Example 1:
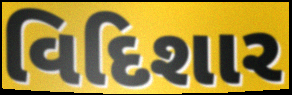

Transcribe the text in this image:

વિદિશાર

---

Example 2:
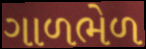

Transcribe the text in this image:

ગાળભેળ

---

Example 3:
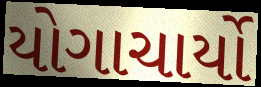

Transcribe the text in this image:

યોગાચાર્યો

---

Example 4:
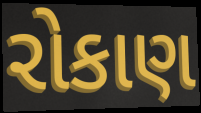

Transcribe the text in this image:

રોકાણ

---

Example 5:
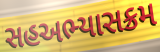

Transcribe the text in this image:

સહઅભ્યાસક્રમ